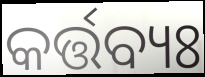
କର୍ତ୍ତବ୍ୟଃ